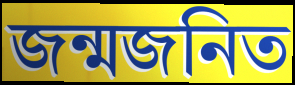
জন্মজনিত